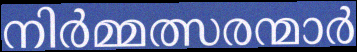
നിർമ്മത്സരന്മാർ